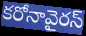
కరోనావైరస్